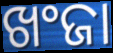
ଖଂଜା